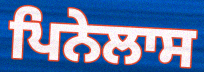
ਪਿਨੇਲਾਸ